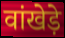
वांखेड़े